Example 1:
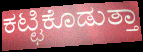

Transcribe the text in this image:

ಕಟ್ಟಿಕೊಡುತ್ತಾ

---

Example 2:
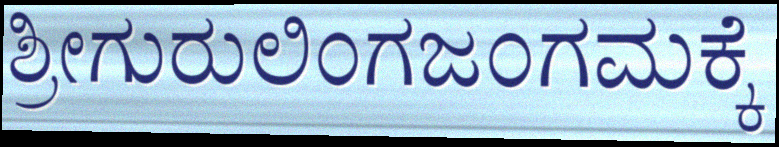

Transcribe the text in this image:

ಶ್ರೀಗುರುಲಿಂಗಜಂಗಮಕ್ಕೆ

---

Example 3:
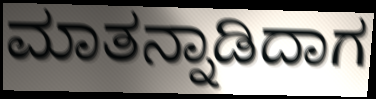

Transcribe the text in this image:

ಮಾತನ್ನಾಡಿದಾಗ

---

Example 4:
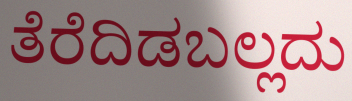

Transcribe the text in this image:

ತೆರೆದಿಡಬಲ್ಲದು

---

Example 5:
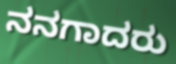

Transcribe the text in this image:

ನನಗಾದರು